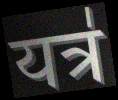
यत्र॑